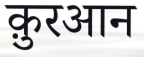
क़ुरआन